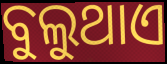
ବୁଲୁଥାଏ